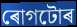
ৰোগটোৰ